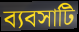
ব্যবসাটি